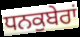
ਧਨਕੁਬੇਰਾਂ